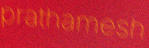
prathamesh